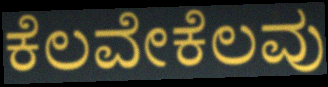
ಕೆಲವೇಕೆಲವು